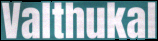
Valthukal